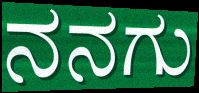
ನನಗು